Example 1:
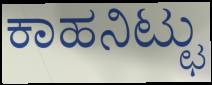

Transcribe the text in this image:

ಕಾಹನಿಟ್ಟು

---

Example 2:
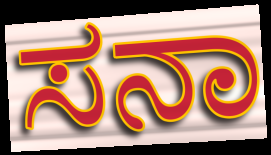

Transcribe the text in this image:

ಸನಾ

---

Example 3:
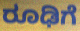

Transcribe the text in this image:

ರೂಢಿಗೆ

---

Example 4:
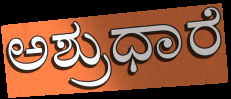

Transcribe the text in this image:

ಅಶ್ರುಧಾರೆ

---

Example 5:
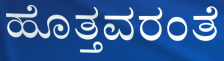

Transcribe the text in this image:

ಹೊತ್ತವರಂತೆ